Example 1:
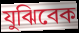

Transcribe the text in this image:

যুঝিবেক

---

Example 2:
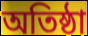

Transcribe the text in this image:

অতিষ্ঠা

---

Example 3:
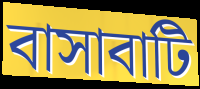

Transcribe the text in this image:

বাসাবাটি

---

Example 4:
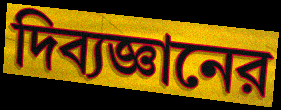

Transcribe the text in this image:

দিব্যজ্ঞানের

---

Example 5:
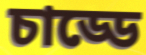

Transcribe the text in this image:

চাড্ডে